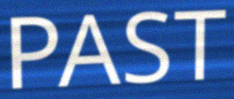
PAST